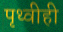
पृथ्वीही